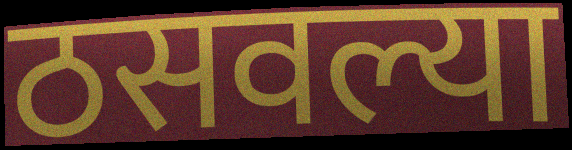
ठसवल्या